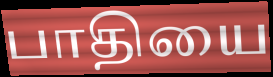
பாதியை